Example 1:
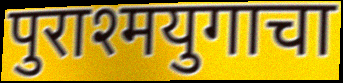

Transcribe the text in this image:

पुराश्मयुगाचा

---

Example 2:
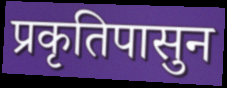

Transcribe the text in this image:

प्रकृतिपासुन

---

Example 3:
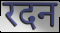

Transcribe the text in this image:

रदन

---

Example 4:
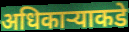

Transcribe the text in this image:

अधिकार्‍याकडे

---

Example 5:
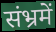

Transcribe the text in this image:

संभ्रमें